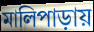
মালিপাড়ায়